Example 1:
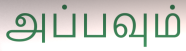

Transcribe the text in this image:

அப்பவும்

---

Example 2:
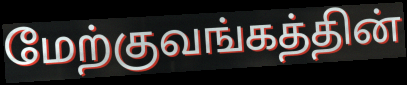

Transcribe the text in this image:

மேற்குவங்கத்தின்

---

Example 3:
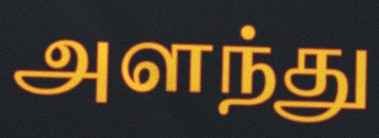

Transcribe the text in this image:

அளந்து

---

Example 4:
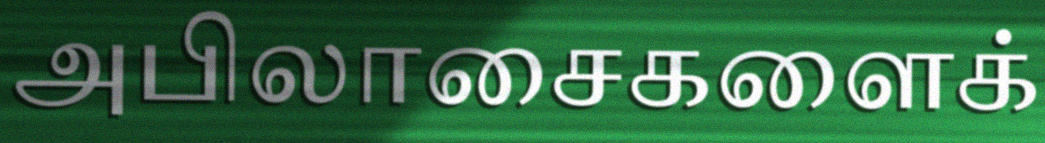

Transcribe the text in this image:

அபிலாசைகளைக்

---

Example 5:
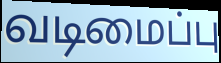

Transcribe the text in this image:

வடிமைப்பு